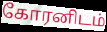
கோரனிடம்